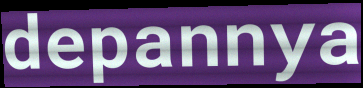
depannya